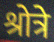
श्रोत्रे